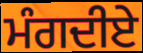
ਮੰਗਦੀਏ